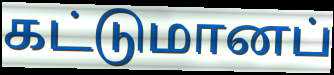
கட்டுமானப்